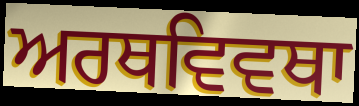
ਅਰਥਵਿਵਥਾ